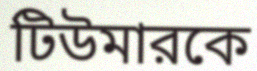
টিউমারকে